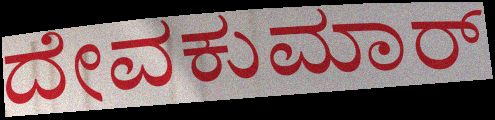
ದೇವಕುಮಾರ್